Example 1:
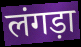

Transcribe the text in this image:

लंगड़ा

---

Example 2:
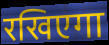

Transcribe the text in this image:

रखिएगा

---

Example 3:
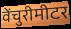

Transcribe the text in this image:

वेंचुरीमीटर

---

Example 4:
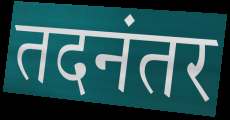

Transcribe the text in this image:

तदनंतर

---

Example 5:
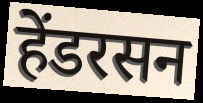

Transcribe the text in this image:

हेंडरसन